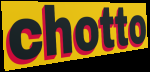
chotto